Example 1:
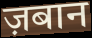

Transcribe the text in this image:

ज़बान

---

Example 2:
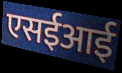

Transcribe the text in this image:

एसईआई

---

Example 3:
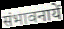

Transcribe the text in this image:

संभावनायें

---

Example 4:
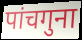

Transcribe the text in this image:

पांचगुना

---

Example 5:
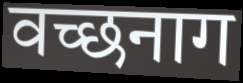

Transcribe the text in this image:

वच्छनाग